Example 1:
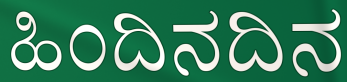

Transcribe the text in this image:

ಹಿಂದಿನದಿನ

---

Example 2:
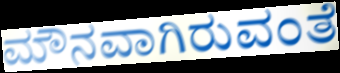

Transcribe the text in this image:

ಮೌನವಾಗಿರುವಂತೆ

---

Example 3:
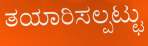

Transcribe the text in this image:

ತಯಾರಿಸಲ್ಪಟ್ಟು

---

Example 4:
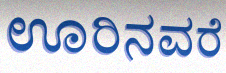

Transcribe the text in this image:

ಊರಿನವರೆ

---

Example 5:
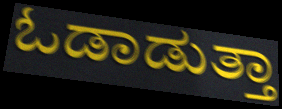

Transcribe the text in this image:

ಓಡಾಡುತ್ತಾ